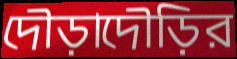
দৌড়াদৌড়ির